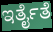
ಇರ್ತೈತೆ